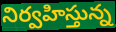
నిర్వహిస్తున్న